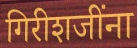
गिरीशजींना